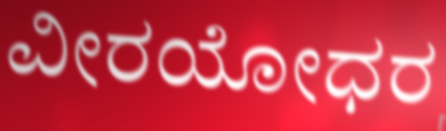
ವೀರಯೋಧರ